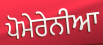
ਪੋਮੇਰੇਨੀਆ